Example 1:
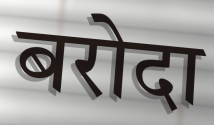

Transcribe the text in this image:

बरोदा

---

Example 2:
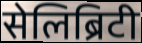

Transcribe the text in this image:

सेलिब्रिटी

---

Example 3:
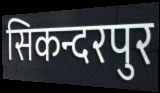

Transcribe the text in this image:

सिकन्दरपुर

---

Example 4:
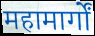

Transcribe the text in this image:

महामार्गों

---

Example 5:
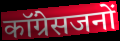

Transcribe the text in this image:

कॉंग्रेसजनों